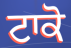
ਟਾਕੋ